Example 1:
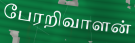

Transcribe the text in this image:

பேரறிவாளன்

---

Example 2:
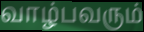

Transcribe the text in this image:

வாழ்பவரும்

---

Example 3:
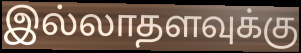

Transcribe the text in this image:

இல்லாதளவுக்கு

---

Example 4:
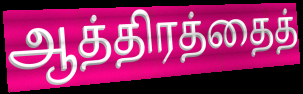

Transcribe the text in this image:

ஆத்திரத்தைத்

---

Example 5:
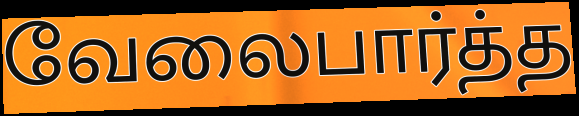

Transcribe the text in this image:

வேலைபார்த்த